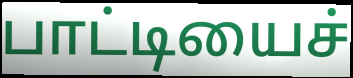
பாட்டியைச்